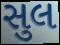
સુલ